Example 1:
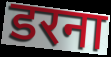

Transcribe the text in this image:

डरना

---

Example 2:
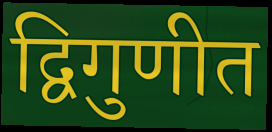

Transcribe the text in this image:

द्विगुणीत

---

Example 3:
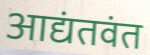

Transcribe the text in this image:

आद्यंतवंत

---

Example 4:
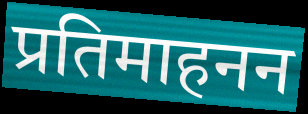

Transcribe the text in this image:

प्रतिमाहनन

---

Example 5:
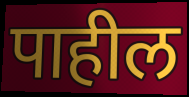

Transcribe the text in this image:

पाहील